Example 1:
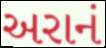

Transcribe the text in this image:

અરાનં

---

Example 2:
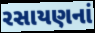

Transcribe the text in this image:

રસાયણનાં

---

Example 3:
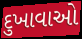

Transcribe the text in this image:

દુખાવાઓ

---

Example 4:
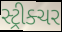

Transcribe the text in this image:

સ્ટ્રીક્ચર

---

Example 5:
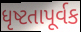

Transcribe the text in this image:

ધૃષ્ટતાપૂર્વક